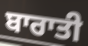
ਬਾਰਾਤੀ